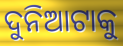
ଦୁନିଆଟାକୁ